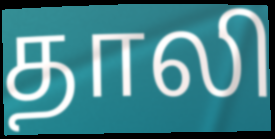
தாலி